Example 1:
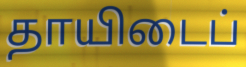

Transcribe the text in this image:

தாயிடைப்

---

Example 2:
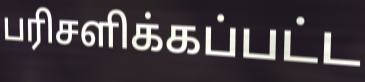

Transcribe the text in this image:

பரிசளிக்கப்பட்ட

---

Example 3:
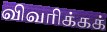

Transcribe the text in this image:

விவரிக்கக்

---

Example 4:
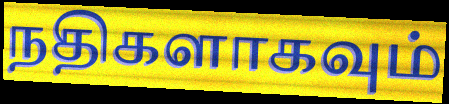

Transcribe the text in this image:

நதிகளாகவும்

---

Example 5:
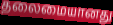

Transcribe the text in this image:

தலைமையானது